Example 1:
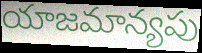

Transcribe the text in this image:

యాజమాన్యపు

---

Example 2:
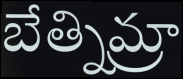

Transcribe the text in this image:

బేత్నిమ్రా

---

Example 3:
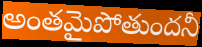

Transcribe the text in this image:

అంతమైపోతుందనీ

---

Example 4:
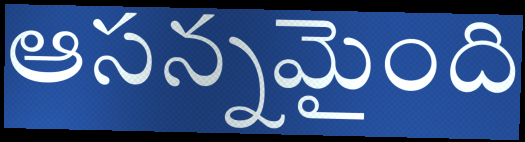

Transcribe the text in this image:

ఆసన్నమైంది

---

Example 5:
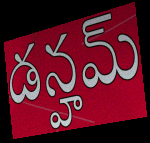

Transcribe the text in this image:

డన్హమ్